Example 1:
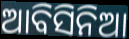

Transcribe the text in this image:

ଆବିସିନିଆ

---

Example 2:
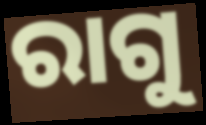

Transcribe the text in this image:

ରାଗୁ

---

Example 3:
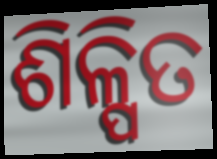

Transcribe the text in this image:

ଶିଳ୍ପିତ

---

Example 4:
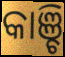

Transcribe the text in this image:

କାଞ୍ଚି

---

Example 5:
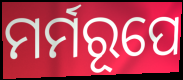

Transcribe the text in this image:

ମର୍ମରୂପେ